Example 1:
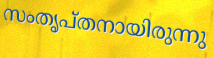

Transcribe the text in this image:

സംതൃപ്തനായിരുന്നു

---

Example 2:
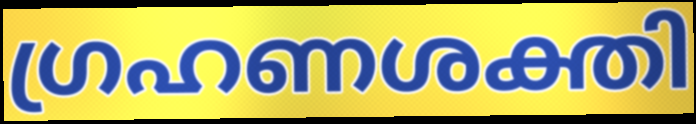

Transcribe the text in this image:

ഗ്രഹണശക്തി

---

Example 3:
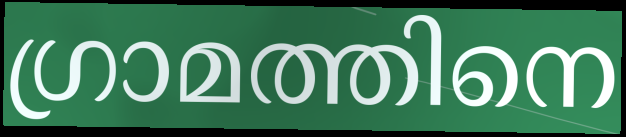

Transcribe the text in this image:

ഗ്രാമത്തിനെ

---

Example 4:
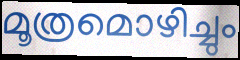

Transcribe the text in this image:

മൂത്രമൊഴിച്ചും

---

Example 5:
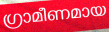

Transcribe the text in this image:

ഗ്രാമീണമായ